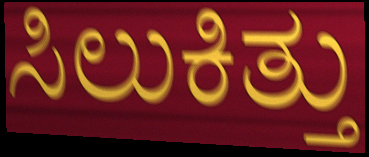
ಸಿಲುಕಿತ್ತು